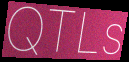
QTLs